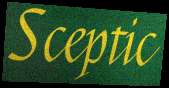
Sceptic